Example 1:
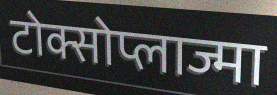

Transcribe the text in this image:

टोक्सोप्लाज्मा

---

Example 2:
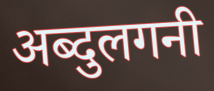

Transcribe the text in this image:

अब्दुलगनी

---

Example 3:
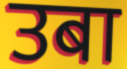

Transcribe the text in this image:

उबा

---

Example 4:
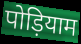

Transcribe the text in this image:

पोड़ियाम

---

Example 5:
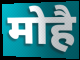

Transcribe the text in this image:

मोहै